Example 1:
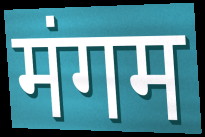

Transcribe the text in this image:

मंगम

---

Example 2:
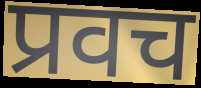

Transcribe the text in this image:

प्रवच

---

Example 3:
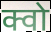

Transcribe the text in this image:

क्वो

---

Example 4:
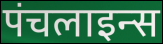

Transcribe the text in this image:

पंचलाइन्स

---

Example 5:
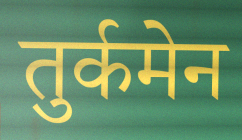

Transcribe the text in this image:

तुर्कमेन